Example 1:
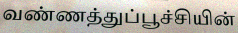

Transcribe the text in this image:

வண்ணத்துப்பூச்சியின்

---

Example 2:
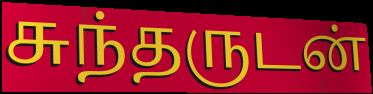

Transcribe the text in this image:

சுந்தருடன்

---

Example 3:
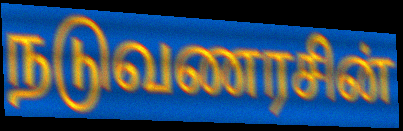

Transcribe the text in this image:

நடுவணரசின்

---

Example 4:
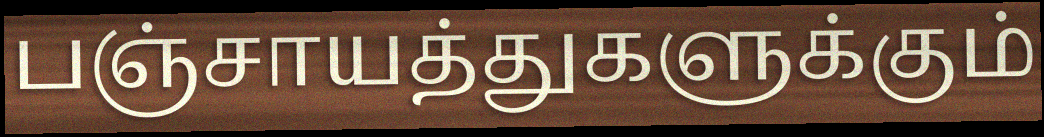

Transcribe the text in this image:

பஞ்சாயத்துகளுக்கும்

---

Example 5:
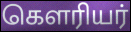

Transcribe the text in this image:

கௌரியர்